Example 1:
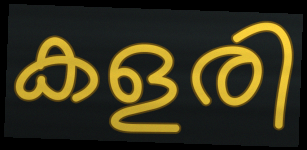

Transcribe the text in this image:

കളരി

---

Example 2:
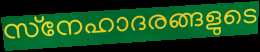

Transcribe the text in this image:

സ്‌നേഹാദരങ്ങളുടെ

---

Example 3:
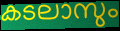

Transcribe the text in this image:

കടലാസും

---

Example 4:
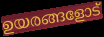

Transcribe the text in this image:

ഉയരങ്ങളോട്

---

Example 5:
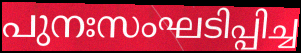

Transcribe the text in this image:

പുനഃസംഘടിപ്പിച്ച